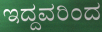
ಇದ್ದವರಿಂದ